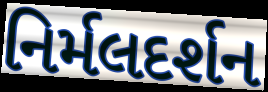
નિર્મલદર્શન